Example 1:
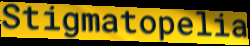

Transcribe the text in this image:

Stigmatopelia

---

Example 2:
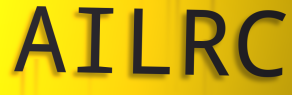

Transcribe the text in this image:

AILRC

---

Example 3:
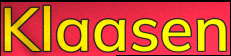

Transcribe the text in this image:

Klaasen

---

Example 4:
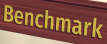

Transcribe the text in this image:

Benchmark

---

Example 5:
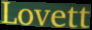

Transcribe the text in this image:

Lovett